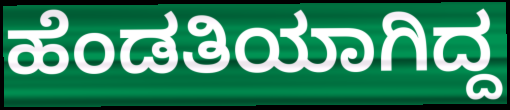
ಹೆಂಡತಿಯಾಗಿದ್ದ